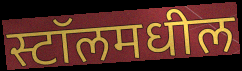
स्टॉलमधील